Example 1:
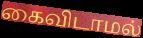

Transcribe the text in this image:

கைவிடாமல்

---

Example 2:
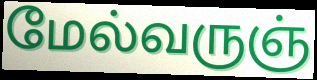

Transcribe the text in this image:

மேல்வருஞ்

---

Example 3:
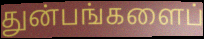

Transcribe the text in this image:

துன்பங்களைப்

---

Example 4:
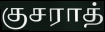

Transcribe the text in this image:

குசராத்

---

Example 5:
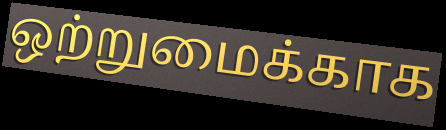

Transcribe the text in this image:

ஒற்றுமைக்காக